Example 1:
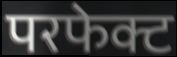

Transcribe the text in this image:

परफेक्ट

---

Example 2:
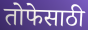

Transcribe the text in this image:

तोफेसाठी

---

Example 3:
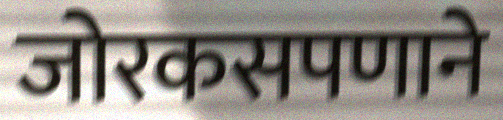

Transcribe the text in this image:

जोरकसपणाने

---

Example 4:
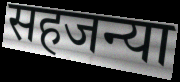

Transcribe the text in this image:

सहजन्या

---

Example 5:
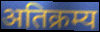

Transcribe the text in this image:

अतिक्रम्य